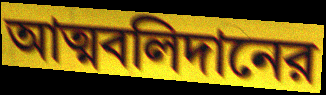
আত্মবলিদানের